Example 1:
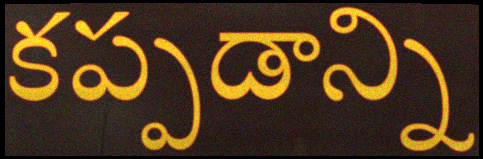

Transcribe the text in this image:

కప్పడాన్ని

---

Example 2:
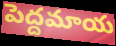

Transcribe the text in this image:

పెద్దమాయ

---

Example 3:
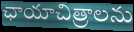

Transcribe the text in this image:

ఛాయాచిత్రాలను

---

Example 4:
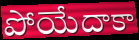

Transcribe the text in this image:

పోయేదాకా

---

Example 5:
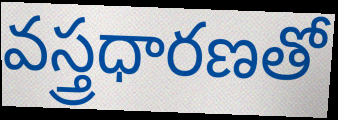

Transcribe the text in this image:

వస్త్రధారణతో